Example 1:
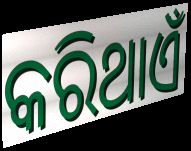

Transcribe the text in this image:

କରିଥାଏଁ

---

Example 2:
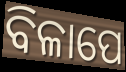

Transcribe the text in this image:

ବିଳାପେ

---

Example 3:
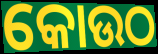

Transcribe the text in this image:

କୋଉଠ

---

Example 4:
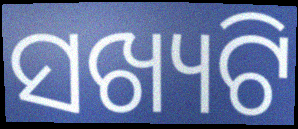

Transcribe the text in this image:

ସଖ୍ୟଟି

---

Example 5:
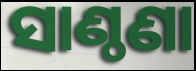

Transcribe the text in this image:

ସାଣ୍ଠଣା